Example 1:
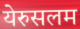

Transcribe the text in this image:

येरुसलम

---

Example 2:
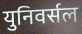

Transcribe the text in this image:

युनिवर्सल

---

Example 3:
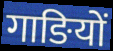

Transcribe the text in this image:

गाङियों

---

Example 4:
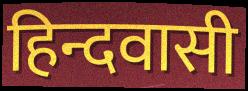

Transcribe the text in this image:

हिन्दवासी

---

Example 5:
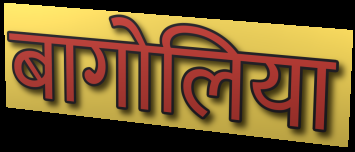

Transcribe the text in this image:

बागोलिया